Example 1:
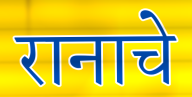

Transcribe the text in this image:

रानाचे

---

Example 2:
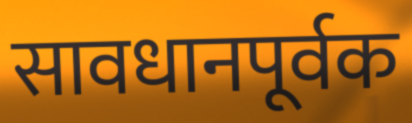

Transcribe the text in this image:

सावधानपूर्वक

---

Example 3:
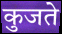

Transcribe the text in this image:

कुजते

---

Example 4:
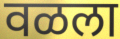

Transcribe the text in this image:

वळला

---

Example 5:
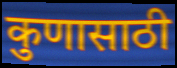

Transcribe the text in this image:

कुणासाठी